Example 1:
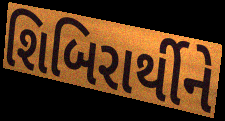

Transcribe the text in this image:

શિબિરાર્થીને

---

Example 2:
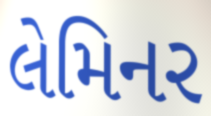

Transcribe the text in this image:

લેમિનર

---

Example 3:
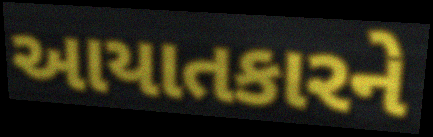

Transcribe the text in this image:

આયાતકારને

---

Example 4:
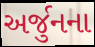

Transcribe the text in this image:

અર્જુનના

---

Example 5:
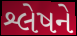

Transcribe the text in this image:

શ્લેષને